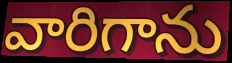
వారిగాను